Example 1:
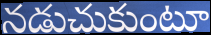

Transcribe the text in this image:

నడుచుకుంటూ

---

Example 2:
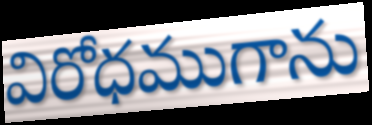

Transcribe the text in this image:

విరోధముగాను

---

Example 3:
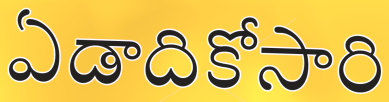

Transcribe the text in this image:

ఏడాదికోసారి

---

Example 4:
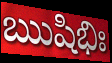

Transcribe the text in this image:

ఋషిభిః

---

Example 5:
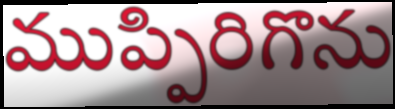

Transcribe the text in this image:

ముప్పిరిగొను